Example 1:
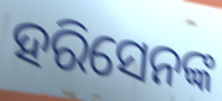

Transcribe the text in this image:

ହରିସେନଙ୍କ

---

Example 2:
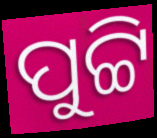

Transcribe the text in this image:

ପୁଟ୍ଟି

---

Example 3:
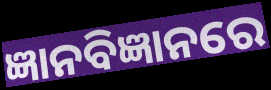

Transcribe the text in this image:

ଜ୍ଞାନବିଜ୍ଞାନରେ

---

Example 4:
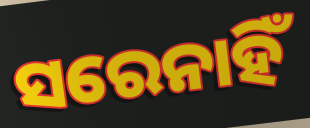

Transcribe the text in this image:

ସରେନାହିଁ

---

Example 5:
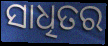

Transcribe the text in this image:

ସାଧିତର